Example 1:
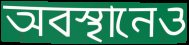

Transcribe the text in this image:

অবস্থানেও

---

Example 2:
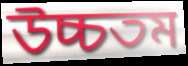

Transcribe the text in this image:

উচ্চতম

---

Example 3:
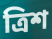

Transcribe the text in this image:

ত্রিশ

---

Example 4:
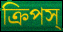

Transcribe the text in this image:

ক্রিপস্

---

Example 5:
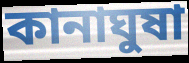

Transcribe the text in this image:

কানাঘুষা